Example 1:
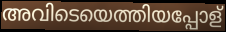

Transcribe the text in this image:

അവിടെയെത്തിയപ്പോള്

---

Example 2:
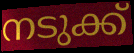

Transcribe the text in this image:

നടുക്ക്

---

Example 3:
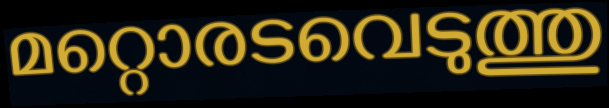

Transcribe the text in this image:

മറ്റൊരടവെടുത്തു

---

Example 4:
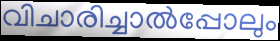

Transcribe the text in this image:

വിചാരിച്ചാൽപ്പോലും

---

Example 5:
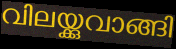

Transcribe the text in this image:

വിലയ്ക്കുവാങ്ങി